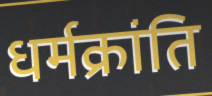
धर्मक्रांति